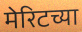
मेरिटच्या